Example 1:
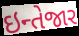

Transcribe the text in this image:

ઇન્તેજાર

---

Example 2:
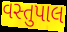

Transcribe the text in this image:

વસ્તુપાલ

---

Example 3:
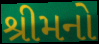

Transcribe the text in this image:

શ્રીમનો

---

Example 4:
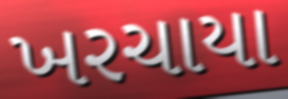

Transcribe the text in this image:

ખરચાયા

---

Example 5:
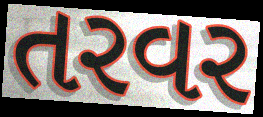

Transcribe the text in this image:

તરવર